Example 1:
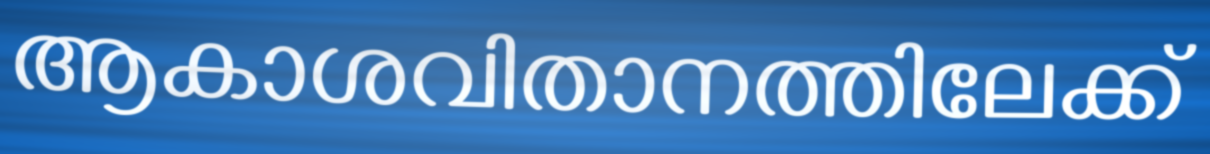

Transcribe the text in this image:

ആകാശവിതാനത്തിലേക്ക്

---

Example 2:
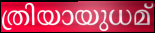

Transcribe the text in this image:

ത്രിയായുധമ്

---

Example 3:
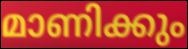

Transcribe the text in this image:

മാണിക്കും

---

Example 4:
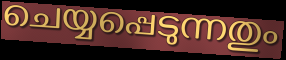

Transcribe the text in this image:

ചെയ്യപ്പെടുന്നതും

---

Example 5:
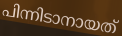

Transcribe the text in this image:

പിന്നിടാനായത്